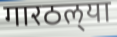
गारठल्या